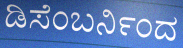
ಡಿಸೆಂಬರ್ನಿಂದ